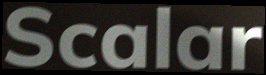
Scalar